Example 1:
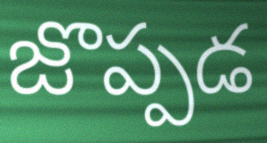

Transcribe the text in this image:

జొప్పడ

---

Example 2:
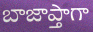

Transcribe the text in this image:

బాజాప్తాగా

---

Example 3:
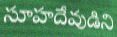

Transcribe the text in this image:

సూహదేవుడిని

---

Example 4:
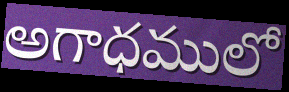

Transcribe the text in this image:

అగాధములో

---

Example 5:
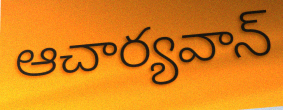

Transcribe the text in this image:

ఆచార్యవాన్